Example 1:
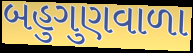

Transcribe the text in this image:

બહુગુણવાળા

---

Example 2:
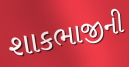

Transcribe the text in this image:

શાકભાજીની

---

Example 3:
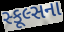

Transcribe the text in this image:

સ્કૂલ્સના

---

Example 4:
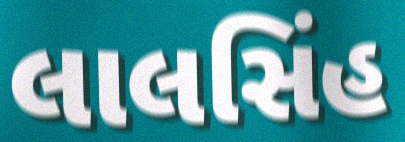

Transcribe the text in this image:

લાલસિંહ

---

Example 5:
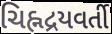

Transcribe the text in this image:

ચિહ્નદ્રયવર્તી